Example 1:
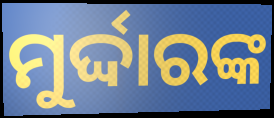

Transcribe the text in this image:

ମୁର୍ଦ୍ଦାରଙ୍କ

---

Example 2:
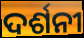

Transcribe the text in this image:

ଦର୍ଶନୀ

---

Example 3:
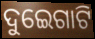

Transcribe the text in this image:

ଦୁଇେଗାଟି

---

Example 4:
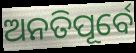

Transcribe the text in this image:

ଅନତିପୂର୍ବେ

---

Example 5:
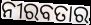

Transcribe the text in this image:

ନୀରବତାର